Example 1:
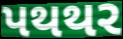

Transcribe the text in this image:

પથથર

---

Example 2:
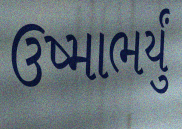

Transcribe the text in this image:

ઉષ્માભર્યું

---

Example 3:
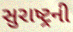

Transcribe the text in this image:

સુરાષ્ટ્રની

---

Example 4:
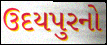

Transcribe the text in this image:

ઉદયપુરનો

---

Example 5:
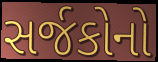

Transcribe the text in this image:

સર્જકોનો